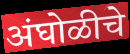
अंघोळीचे